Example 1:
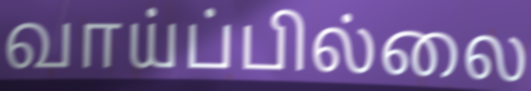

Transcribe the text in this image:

வாய்ப்பில்லை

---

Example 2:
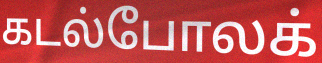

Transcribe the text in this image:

கடல்போலக்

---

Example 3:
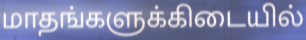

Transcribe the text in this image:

மாதங்களுக்கிடையில்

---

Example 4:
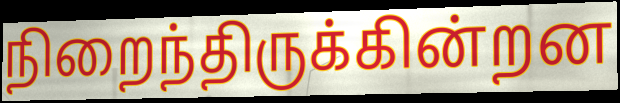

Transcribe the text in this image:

நிறைந்திருக்கின்றன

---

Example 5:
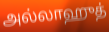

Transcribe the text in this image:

அல்லாஹுத்